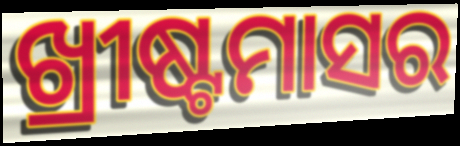
ଖ୍ରୀଷ୍ଟମାସର